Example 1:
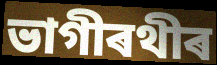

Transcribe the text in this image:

ভাগীৰথীৰ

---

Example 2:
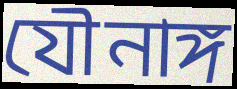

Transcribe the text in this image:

যৌনাঙ্গ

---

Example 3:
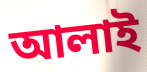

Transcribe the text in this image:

আলাই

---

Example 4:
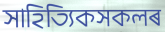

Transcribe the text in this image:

সাহিত্যিকসকলৰ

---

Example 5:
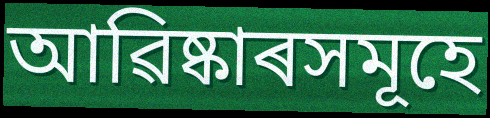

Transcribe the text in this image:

আৱিষ্কাৰসমূহে